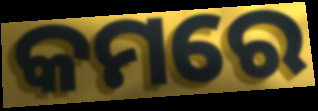
କମରେ